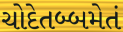
ચોદેતબ્બમેતં